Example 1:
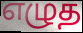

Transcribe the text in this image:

எழுத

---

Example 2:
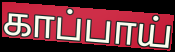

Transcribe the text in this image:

காப்பாய்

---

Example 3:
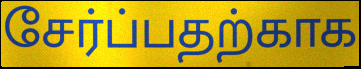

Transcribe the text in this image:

சேர்ப்பதற்காக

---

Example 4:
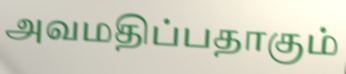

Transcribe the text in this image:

அவமதிப்பதாகும்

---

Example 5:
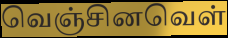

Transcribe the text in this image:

வெஞ்சினவெள்